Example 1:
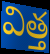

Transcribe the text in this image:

విత్త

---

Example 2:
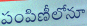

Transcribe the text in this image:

పంపిణీలోనూ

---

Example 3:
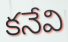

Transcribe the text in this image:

కనేవి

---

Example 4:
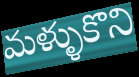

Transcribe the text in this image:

మళ్ళుకొని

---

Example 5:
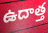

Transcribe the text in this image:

ఉదాత్త